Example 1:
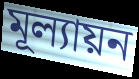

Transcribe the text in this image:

মূল্যায়ন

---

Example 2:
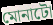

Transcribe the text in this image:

মোনাটো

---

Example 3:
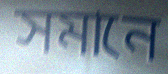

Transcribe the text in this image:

সমানে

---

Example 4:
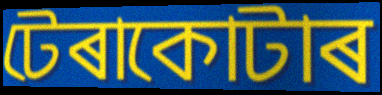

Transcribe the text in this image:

টেৰাকোটাৰ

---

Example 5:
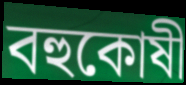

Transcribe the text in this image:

বহুকোষী